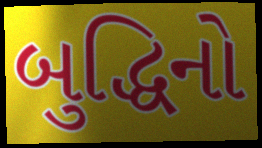
બુદ્ધિનો